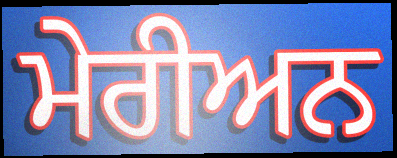
ਮੇਰੀਅਨ